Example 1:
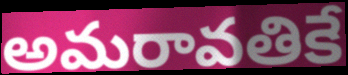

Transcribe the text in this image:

అమరావతికే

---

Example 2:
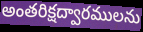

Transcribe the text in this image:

అంతరిక్షద్వారములను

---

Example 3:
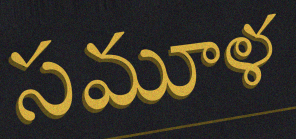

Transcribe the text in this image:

సమూళ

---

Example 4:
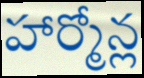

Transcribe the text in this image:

హార్మోన్ల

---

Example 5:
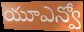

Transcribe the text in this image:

యూఎన్వో